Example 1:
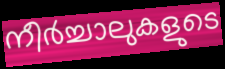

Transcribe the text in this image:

നീർച്ചാലുകളുടെ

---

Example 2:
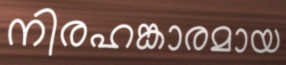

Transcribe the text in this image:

നിരഹങ്കാരമായ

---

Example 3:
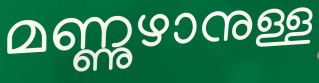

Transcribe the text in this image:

മണ്ണുഴാനുള്ള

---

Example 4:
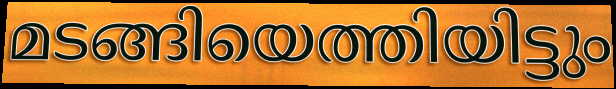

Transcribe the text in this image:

മടങ്ങിയെത്തിയിട്ടും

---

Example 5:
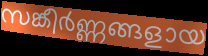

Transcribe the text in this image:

സങ്കീർണ്ണങ്ങളായ